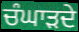
ਚੰਘਾੜਦੇ